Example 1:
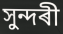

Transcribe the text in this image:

সুন্দৰী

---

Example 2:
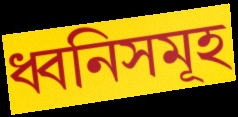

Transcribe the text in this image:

ধ্বনিসমূহ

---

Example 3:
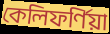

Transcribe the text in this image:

কেলিফৰ্ণিয়া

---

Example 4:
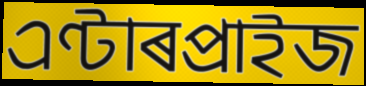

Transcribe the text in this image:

এণ্টাৰপ্ৰাইজ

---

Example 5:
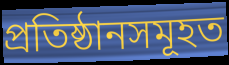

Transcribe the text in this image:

প্ৰতিষ্ঠানসমূহত